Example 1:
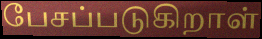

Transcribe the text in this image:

பேசப்படுகிறாள்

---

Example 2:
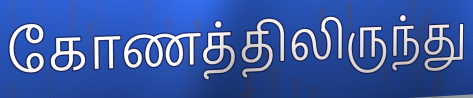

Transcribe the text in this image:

கோணத்திலிருந்து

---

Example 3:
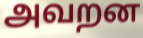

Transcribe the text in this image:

அவறன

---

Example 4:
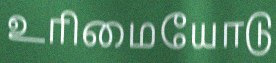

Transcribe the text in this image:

உரிமையோடு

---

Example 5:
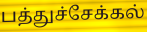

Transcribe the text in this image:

பத்துச்சேக்கல்